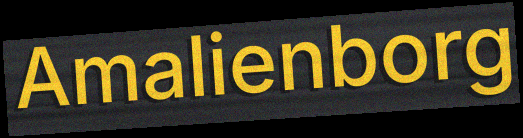
Amalienborg